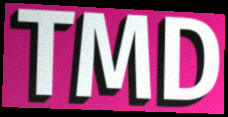
TMD